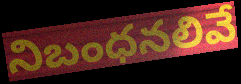
నిబంధనలివే